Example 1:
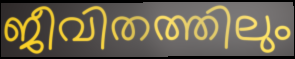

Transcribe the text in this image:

ജീവിതത്തിലും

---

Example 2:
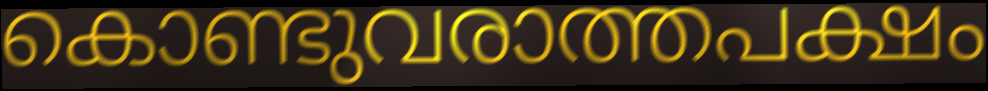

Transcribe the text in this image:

കൊണ്ടുവരാത്തപക്ഷം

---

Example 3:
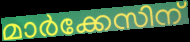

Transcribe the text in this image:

മാർക്കേസിന്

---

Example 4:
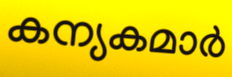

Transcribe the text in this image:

കന്യകമാർ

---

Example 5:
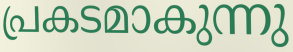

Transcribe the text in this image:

പ്രകടമാകുന്നു